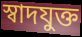
স্বাদযুক্ত